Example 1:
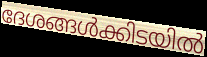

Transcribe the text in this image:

ദേശങ്ങൾക്കിടയിൽ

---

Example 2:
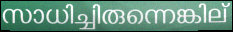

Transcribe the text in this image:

സാധിച്ചിരുന്നെങ്കില്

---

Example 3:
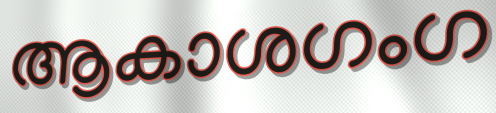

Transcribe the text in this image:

ആകാശഗംഗ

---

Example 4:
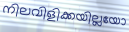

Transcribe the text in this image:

നിലവിളിക്കയില്ലയോ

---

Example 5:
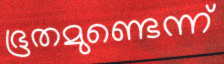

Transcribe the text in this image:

ഭൂതമുണ്ടെന്ന്